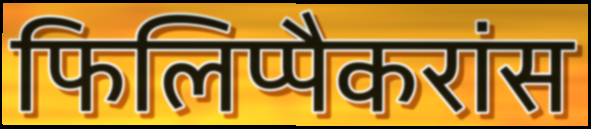
फिलिप्पैकरांस